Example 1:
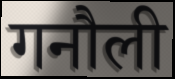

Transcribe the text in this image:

गनौली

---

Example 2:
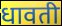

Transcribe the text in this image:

धावती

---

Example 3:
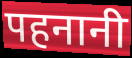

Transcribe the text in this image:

पहनानी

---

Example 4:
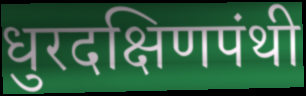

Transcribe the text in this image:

धुरदक्षिणपंथी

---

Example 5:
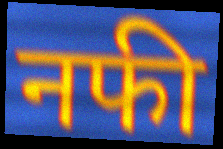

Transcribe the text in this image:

नफी